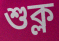
শুক্ল